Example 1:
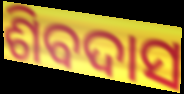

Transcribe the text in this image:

ଶିବଦାସ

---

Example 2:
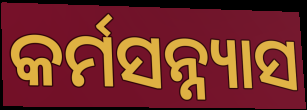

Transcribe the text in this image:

କର୍ମସନ୍ନ୍ୟାସ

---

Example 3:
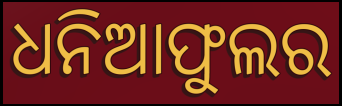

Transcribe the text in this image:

ଧନିଆଫୁଲର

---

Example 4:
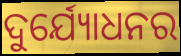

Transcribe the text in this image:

ଦୁର୍ଯ୍ୟୋଧନର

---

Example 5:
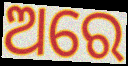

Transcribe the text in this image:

ଅରେ